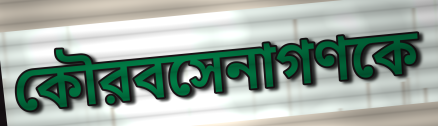
কৌরবসেনাগণকে